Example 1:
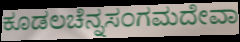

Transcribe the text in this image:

ಕೂಡಲಚೆನ್ನಸಂಗಮದೇವಾ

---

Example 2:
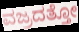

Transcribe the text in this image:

ವಜ್ರದತ್ತೋ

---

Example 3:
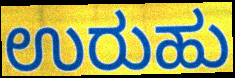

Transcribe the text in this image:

ಉರುಹು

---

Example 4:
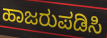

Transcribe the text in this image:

ಹಾಜರುಪಡಿಸಿ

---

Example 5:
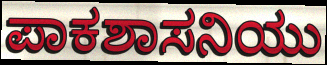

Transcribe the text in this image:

ಪಾಕಶಾಸನಿಯು